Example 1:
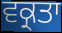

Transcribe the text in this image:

ਵਕ੍ਰਤਾ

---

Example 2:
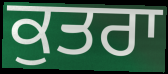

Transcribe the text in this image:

ਕੁਤਰਾ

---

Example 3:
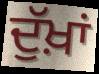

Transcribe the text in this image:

ਦੁੱਖ਼ਾਂ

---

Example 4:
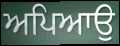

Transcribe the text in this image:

ਅਪਿਆਉ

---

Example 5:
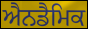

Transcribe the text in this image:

ਐਨਡੈਮਿਕ